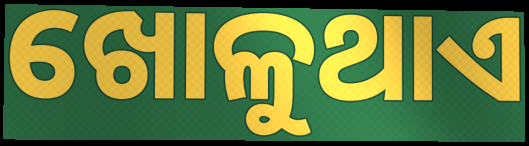
ଖୋଳୁଥାଏ